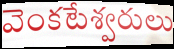
వెంకటేశ్వరులు